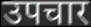
उपचार